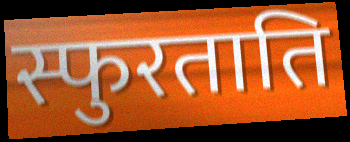
स्फुरताति